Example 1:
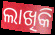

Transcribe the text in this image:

ଲାଖିକି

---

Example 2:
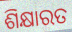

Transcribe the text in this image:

ଶିକ୍ଷାରତ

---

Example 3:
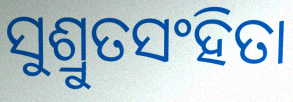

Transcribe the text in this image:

ସୁଶ୍ରୁତସଂହିତା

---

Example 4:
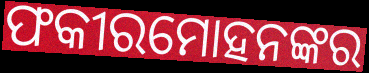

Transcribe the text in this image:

ଫକୀରମୋହନଙ୍କର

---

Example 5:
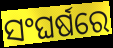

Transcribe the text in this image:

ସଂଘର୍ଷରେ